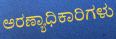
ಅರಣ್ಯಾಧಿಕಾರಿಗಳು